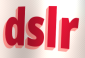
dslr